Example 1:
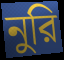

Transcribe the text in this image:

নুরি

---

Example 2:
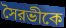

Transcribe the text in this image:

সৈরভীকে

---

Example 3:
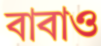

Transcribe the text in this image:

বাবাও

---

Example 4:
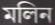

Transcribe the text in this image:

মলিন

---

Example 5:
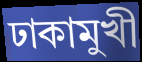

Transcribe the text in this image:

ঢাকামুখী